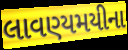
લાવણ્યમયીના